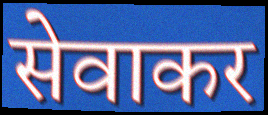
सेवाकर